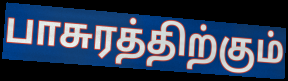
பாசுரத்திற்கும்